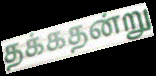
தக்கதன்று